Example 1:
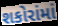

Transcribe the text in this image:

શકોરાંમાં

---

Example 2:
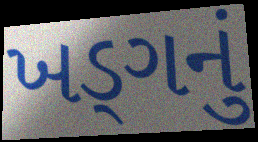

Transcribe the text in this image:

ખડ્ગનું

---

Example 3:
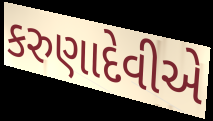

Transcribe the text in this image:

કરુણાદેવીએ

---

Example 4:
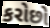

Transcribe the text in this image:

કરોછો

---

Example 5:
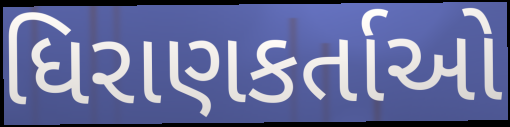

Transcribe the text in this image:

ધિરાણકર્તાઓ